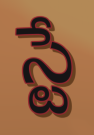
స్టే